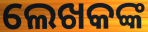
ଲେଖକଙ୍କ